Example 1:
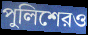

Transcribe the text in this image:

পুলিশেরও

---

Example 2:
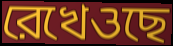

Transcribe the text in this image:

রেখেওছে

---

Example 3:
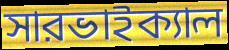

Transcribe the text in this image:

সারভাইক্যাল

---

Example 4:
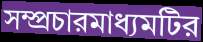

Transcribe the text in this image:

সম্প্রচারমাধ্যমটির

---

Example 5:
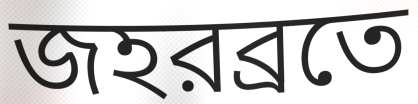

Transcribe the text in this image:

জহরব্রতে